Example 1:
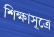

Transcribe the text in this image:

শিক্ষাসূত্রে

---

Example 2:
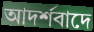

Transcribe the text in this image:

আদর্শবাদে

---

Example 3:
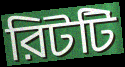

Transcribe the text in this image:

রিটটি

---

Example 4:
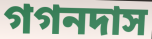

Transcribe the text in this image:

গগনদাস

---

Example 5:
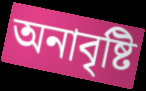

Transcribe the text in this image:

অনাবৃষ্টি